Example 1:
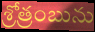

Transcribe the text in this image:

శ్రోత్రంబును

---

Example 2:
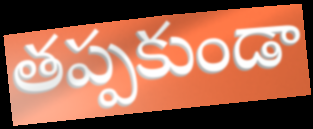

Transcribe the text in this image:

తప్పకుండా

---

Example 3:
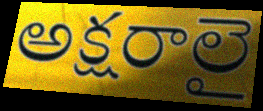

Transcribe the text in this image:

అక్షరాలై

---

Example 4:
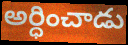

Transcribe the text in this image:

అర్ధించాడు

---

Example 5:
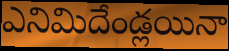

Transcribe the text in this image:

ఎనిమిదేండ్లయినా